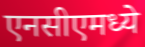
एनसीएमध्ये